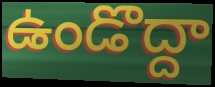
ఉండొద్దా